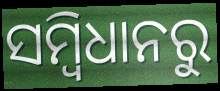
ସମ୍ବିଧାନରୁ